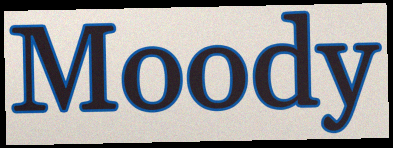
Moody